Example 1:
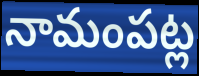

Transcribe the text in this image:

నామంపట్ల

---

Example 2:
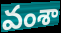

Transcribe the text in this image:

వంశా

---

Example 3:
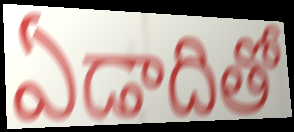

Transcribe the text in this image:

ఏడాదితో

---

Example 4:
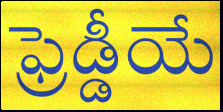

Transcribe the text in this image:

ఫ్రెడ్డీయే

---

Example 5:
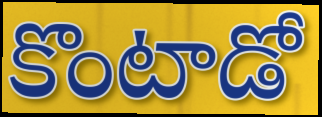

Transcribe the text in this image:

కొంటాడో